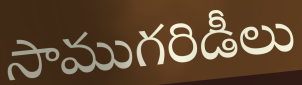
సాముగరిడీలు